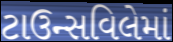
ટાઉન્સવિલેમાં